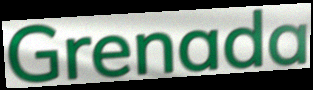
Grenada